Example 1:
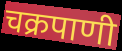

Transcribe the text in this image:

चक्रपाणी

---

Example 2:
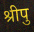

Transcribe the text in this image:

श्रीपु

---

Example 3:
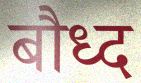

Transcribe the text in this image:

बौध्द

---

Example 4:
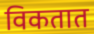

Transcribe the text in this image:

विकतात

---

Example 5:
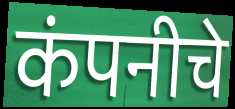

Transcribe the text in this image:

कंपनीचे